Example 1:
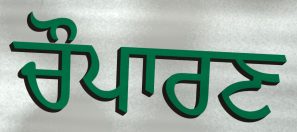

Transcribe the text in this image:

ਚੌਪਾਰਣ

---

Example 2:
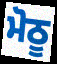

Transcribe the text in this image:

ਮੋਠੂ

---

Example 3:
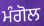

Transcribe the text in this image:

ਮੰਗੋਲ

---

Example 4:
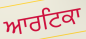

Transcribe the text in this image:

ਆਰਟਿਕਾ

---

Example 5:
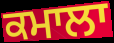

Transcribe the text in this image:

ਕਮਾਲਾ